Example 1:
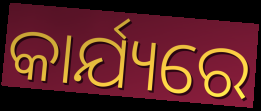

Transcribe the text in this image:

କାର୍ଯ୍ୟରେ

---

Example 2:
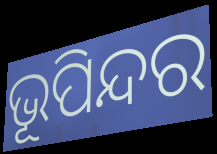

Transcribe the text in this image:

ଭୂପିନ୍ଦର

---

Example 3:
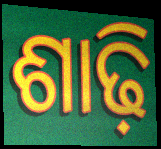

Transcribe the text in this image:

ଶାଢ଼ି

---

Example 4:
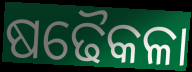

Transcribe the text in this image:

ଷଢୈକଳା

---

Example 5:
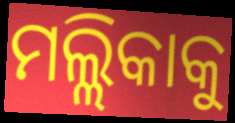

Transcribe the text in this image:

ମଲ୍ଲିକାକୁ